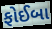
ફોઈબા